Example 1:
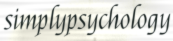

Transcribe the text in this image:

simplypsychology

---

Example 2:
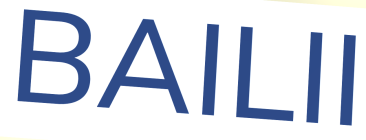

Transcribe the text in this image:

BAILII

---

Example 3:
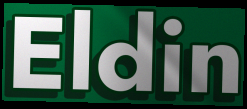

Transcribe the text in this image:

Eldin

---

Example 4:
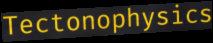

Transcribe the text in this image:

Tectonophysics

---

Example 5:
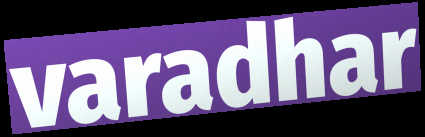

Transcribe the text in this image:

varadhar